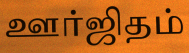
ஊர்ஜிதம்